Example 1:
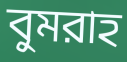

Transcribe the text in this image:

বুমরাহ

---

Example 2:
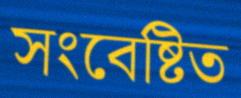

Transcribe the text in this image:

সংবেষ্টিত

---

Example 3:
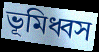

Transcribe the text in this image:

ভূমিধ্বস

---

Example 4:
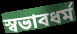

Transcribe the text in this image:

স্বভাবধর্ম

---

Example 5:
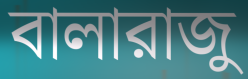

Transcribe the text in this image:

বালারাজু